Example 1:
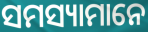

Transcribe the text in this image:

ସମସ୍ୟାମାନେ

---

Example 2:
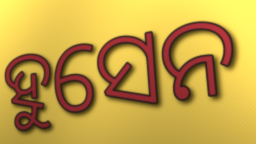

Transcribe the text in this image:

ହୁସେନ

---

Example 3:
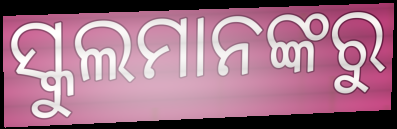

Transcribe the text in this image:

ସ୍କୁଲମାନଙ୍କରୁ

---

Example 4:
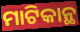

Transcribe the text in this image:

ମାଟିକାନ୍ଥ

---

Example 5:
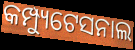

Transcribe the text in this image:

କମ୍ପ୍ୟୁଟେସନାଲ